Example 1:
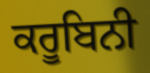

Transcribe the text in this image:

ਕਰੂਬਿਨੀ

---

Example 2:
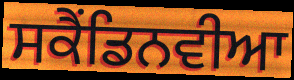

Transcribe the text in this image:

ਸਕੈਂਡਿਨਵੀਆ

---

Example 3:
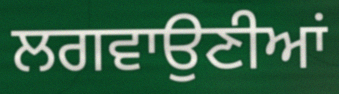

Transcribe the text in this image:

ਲਗਵਾਉਣੀਆਂ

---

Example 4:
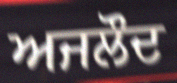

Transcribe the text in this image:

ਅਜਲੌਦ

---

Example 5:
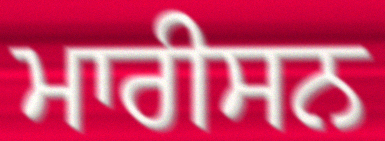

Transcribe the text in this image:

ਮਾਰੀਸਨ